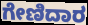
ಗೇಣಿದಾರ